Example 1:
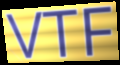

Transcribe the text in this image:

VTF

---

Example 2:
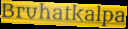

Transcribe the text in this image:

Bruhatkalpa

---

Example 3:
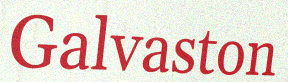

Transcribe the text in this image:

Galvaston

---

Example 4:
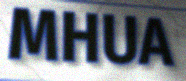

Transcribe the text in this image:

MHUA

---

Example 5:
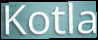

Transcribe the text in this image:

Kotla